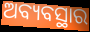
ଅବ୍ୟବସ୍ଥାର